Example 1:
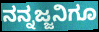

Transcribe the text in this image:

ನನ್ನಜ್ಜನಿಗೂ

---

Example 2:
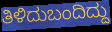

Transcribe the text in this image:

ತಿಳಿದುಬಂದಿದ್ದು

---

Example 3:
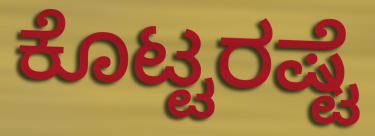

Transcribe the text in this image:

ಕೊಟ್ಟರಷ್ಟೆ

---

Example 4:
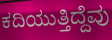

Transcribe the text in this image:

ಕದಿಯುತ್ತಿದ್ದೆವು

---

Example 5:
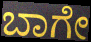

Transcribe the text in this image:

ಬಾಗೇ